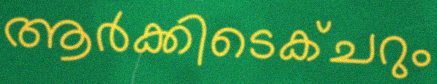
ആർക്കിടെക്ചറും